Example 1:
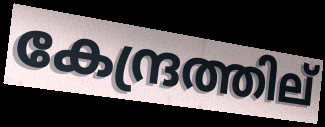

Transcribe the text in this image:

കേന്ദ്രത്തില്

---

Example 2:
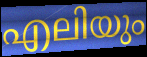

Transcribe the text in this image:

എലിയും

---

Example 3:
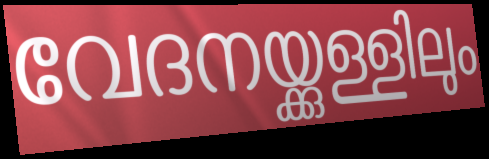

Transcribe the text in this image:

വേദനയ്ക്കുള്ളിലും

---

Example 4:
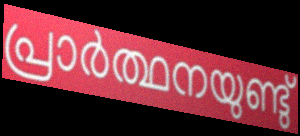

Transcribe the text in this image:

പ്രാർത്ഥനയുണ്ടു്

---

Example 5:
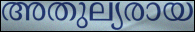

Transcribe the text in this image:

അതുല്യരായ